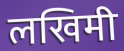
लखिमी